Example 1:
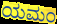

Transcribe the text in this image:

ಯಮಂ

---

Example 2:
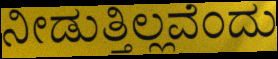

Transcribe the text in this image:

ನೀಡುತ್ತಿಲ್ಲವೆಂದು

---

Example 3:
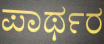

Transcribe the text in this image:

ಪಾರ್ಥರ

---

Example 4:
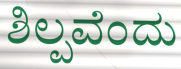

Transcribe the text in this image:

ಶಿಲ್ಪವೆಂದು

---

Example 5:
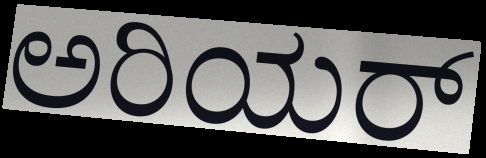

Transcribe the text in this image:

ಅರಿಯರ್